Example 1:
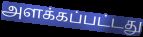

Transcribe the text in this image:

அளக்கப்பட்டது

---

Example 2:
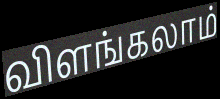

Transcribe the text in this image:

விளங்கலாம்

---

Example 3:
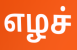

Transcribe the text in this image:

எழச்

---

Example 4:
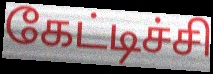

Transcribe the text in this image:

கேட்டிச்சி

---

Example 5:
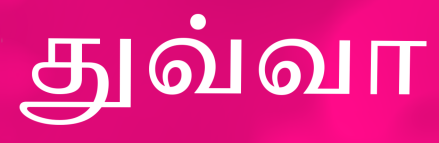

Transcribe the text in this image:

துவ்வா